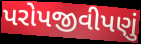
પરોપજીવીપણું